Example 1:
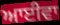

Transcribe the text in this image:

ਆਈਵਾ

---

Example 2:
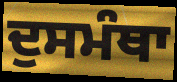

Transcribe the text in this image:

ਦੁਸਮੰਥਾ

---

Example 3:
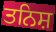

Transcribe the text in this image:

ਤਨਿਸ਼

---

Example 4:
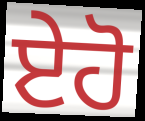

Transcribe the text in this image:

ਏਹੋ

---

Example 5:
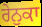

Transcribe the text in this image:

ਰੇਨੁਕਾ